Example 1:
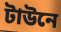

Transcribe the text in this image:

টাউনে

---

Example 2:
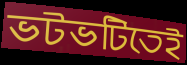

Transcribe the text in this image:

ভটভটিতেই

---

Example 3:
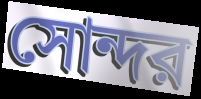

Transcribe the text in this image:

সোন্দর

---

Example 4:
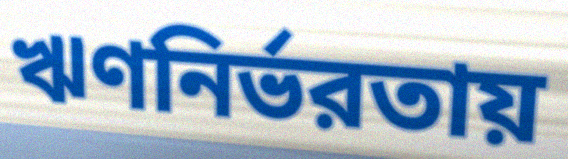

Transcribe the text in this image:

ঋণনির্ভরতায়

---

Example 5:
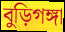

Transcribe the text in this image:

বুড়িগঙ্গা